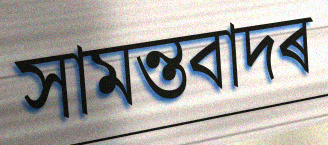
সামন্তবাদৰ